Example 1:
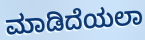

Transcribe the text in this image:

ಮಾಡಿದೆಯಲಾ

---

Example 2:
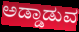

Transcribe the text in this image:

ಅಡ್ಡಾಡುವ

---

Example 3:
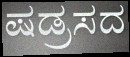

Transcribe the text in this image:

ಷಡ್ರಸದ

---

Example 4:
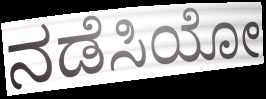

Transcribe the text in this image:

ನಡೆಸಿಯೋ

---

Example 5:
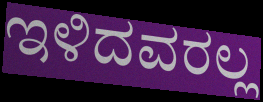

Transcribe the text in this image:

ಇಳಿದವರಲ್ಲ